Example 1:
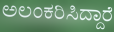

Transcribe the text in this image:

ಅಲಂಕರಿಸಿದ್ದಾರೆ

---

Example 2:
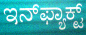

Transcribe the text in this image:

ಇನ್‌ಫ್ಯಾಕ್ಟ್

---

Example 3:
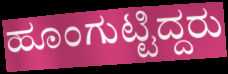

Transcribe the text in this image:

ಹೂಂಗುಟ್ಟಿದ್ದರು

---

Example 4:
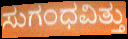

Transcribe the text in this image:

ಸುಗಂಧವಿತ್ತು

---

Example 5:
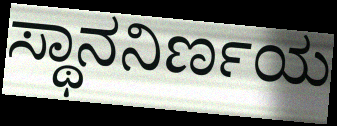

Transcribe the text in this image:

ಸ್ಥಾನನಿರ್ಣಯ